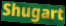
Shugart